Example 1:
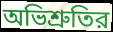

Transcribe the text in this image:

অভিশ্রুতির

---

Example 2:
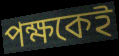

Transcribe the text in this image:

পক্ষকেই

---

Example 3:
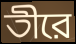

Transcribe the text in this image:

তীরে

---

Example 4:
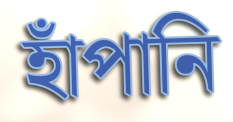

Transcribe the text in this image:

হাঁপানি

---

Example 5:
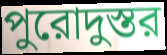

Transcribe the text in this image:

পুরোদুস্তর